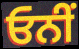
ਓਨੀਂ